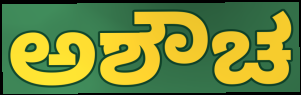
ಅಶೌಚ